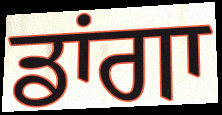
ਡਾਂਗਾ